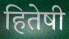
हितेषी